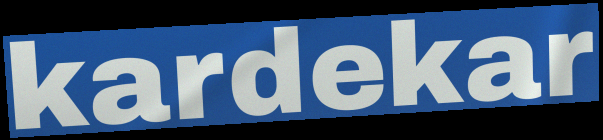
kardekar